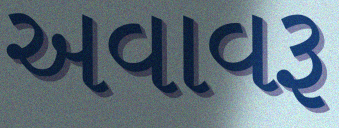
અવાવરૂ